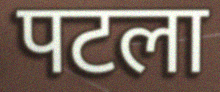
पटला